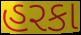
હરકા